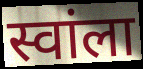
स्वांला